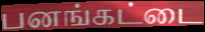
பனங்கட்டை